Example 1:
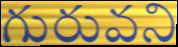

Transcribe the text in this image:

గురువని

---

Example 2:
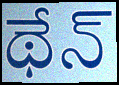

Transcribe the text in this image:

థేన్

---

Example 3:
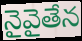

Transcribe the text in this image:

నైవైతేన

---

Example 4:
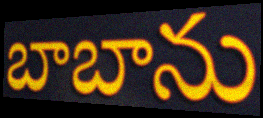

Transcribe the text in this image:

బాబాను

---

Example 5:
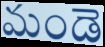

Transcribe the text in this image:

మండె